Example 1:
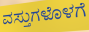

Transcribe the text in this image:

ವಸ್ತುಗಳೊಳಗೆ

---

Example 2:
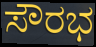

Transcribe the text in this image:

ಸೌರಭ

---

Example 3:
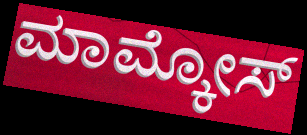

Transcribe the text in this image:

ಮಾಮ್ಕೋಸ್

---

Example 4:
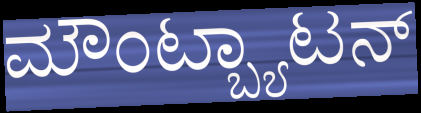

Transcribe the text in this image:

ಮೌಂಟ್ಬ್ಯಾಟನ್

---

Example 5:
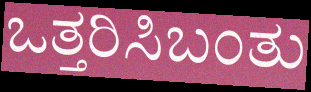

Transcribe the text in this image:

ಒತ್ತರಿಸಿಬಂತು